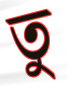
তু